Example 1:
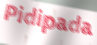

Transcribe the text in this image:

Pidipada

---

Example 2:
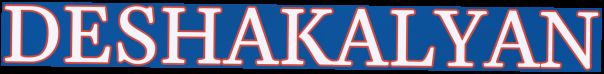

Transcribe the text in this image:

DESHAKALYAN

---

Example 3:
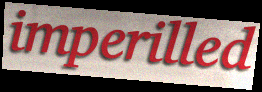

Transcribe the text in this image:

imperilled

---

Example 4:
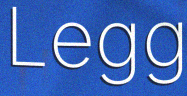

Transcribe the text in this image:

Legg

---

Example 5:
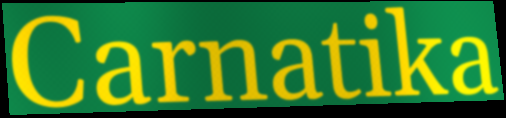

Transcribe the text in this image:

Carnatika